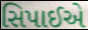
સિપાઈએ